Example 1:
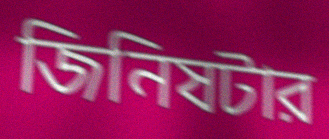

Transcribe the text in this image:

জিনিষটার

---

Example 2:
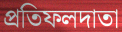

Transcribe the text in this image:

প্রতিফলদাতা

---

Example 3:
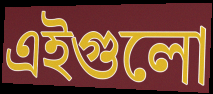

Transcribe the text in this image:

এইগুলো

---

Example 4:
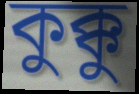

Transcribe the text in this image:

কুক্কু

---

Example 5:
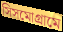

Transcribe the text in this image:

সিসমোগ্রামে